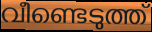
വീണ്ടെടുത്ത്